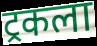
ट्रकला